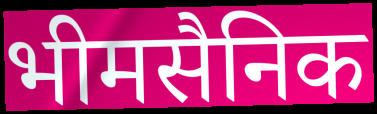
भीमसैनिक